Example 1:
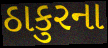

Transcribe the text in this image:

ઠાકુરના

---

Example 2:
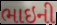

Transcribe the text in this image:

ભાઇની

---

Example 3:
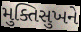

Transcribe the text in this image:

મુક્તિસુખને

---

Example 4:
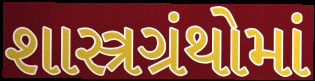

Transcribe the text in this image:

શાસ્ત્રગ્રંથોમાં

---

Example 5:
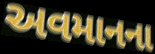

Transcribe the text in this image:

અવમાનના